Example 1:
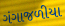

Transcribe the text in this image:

ગંગાજળીયા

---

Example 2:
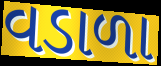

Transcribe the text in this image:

વડાળા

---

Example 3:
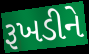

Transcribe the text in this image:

રૂખડીને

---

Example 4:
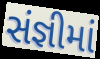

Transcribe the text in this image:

સંજ્ઞીમાં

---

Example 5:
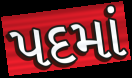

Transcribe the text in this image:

પદમાં